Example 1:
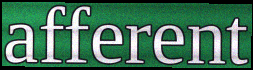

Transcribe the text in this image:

afferent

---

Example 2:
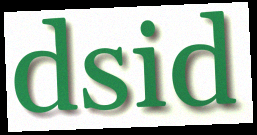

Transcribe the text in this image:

dsid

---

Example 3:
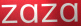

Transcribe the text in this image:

zaza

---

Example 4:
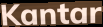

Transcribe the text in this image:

Kantar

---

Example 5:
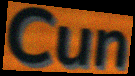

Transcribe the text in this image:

Cun